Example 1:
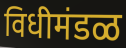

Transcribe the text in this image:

विधीमंडळ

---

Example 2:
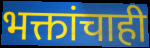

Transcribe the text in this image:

भक्तांचाही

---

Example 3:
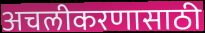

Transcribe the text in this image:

अचलीकरणासाठी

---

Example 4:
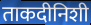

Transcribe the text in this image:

ताकदीनिशी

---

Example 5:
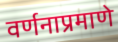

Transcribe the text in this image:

वर्णनाप्रमाणे